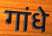
गांधे